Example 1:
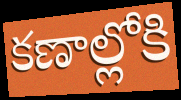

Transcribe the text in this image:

కణాల్లోకి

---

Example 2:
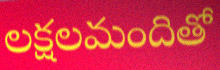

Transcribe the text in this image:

లక్షలమందితో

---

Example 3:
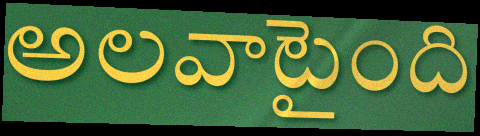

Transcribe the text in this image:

అలవాటైంది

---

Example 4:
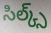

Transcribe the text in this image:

సిల్క్స్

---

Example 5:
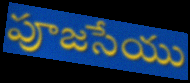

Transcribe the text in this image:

పూజసేయు